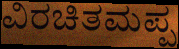
ವಿರಚಿತಮಪ್ಪ